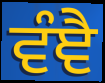
ਵੰਞੈ